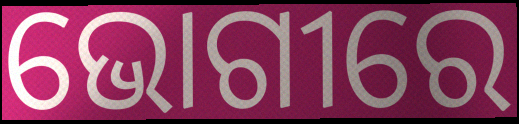
ଭୋଗୀରେ